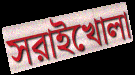
সরাইখোলা